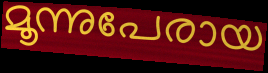
മൂന്നുപേരായ